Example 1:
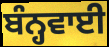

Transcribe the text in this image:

ਬੰਨ੍ਹਵਾਈ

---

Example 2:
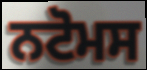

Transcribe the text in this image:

ਨਟੋਮਸ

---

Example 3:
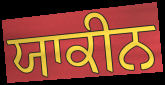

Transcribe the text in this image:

ਯਾਕੀਨ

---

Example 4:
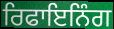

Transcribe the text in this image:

ਰਿਫਾਇਨਿੰਗ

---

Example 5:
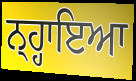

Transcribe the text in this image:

ਨ੍ਹ੍ਹਾਇਆ